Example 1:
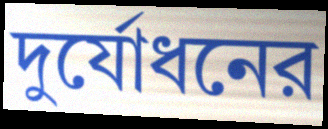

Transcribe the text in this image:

দুর্যোধনের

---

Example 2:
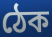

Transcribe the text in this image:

ঠেক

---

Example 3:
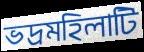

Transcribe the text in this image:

ভদ্রমহিলাটি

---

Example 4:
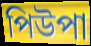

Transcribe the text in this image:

পিউপা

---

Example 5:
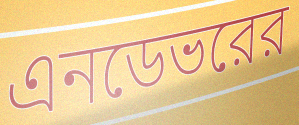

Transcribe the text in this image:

এনডেভরের